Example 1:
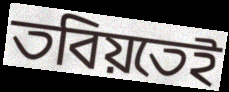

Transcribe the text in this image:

তবিয়তেই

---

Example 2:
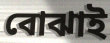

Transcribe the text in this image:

বোঝাই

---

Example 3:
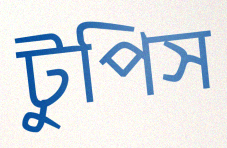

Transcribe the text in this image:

টুপিস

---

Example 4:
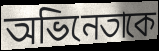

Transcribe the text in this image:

অভিনেতাকে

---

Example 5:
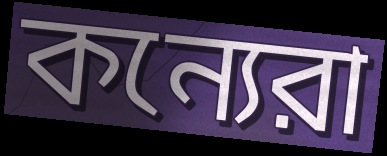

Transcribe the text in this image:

কন্যেরা